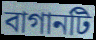
বাগানটি